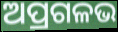
ଅପ୍ରଗଳଭ